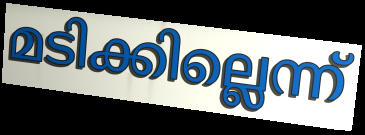
മടിക്കില്ലെന്ന്